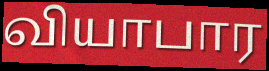
வியாபார